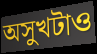
অসুখটাও